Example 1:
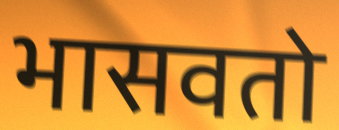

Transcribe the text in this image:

भासवतो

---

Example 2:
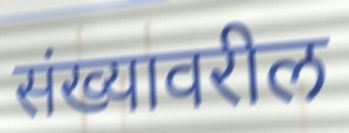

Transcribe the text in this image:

संख्यावरील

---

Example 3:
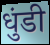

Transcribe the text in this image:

धुंडी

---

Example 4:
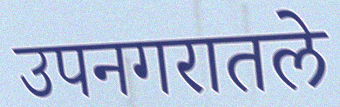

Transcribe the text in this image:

उपनगरातले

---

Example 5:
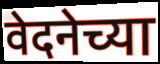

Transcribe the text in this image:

वेदनेच्या